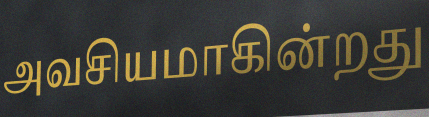
அவசியமாகின்றது